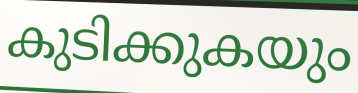
കുടിക്കുകയും